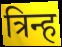
त्रिन्ह